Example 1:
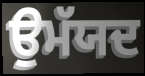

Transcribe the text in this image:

ਉਮੱਯਦ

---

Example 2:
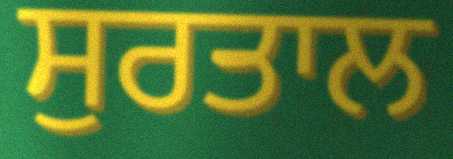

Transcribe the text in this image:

ਸੁਰਤਾਲ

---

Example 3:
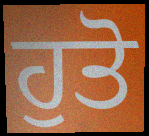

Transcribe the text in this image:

ਹੁਤੋ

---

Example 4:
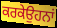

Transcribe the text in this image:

ਕਰਕੇਉਹਨਾਂ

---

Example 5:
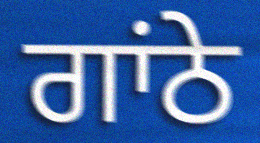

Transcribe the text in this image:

ਗਾਂਠੇ